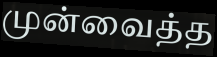
முன்வைத்த